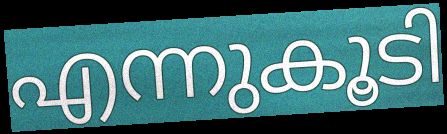
എന്നുകൂടി